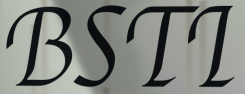
BSTI